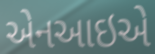
એનઆઇએ